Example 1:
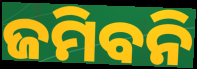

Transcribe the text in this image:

ଜମିବନି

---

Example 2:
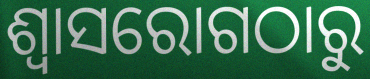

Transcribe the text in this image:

ଶ୍ୱାସରୋଗଠାରୁ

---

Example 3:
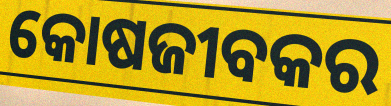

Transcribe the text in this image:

କୋଷଜୀବକର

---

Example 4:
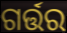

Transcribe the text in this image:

ଗର୍ତ୍ତର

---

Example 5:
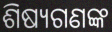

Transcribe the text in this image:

ଶିଷ୍ୟଗଣଙ୍କ